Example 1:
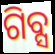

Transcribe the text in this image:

ଗିବ୍ସ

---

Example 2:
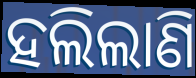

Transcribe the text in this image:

ହଲିଲାଣି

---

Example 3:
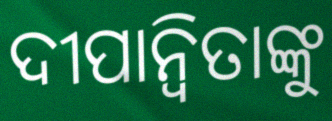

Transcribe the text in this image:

ଦୀପାନ୍ୱିତାଙ୍କୁ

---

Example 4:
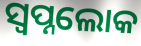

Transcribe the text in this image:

ସ୍ୱପ୍ନଲୋକ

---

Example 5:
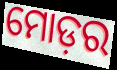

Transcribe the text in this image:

ମୋଡ଼ର